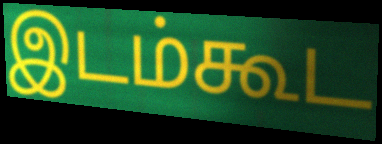
இடம்கூட